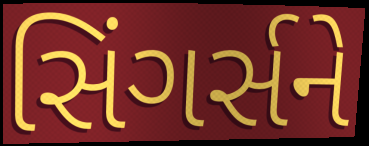
સિંગર્સને